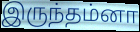
இருந்தம்னா